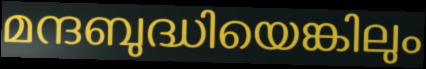
മന്ദബുദ്ധിയെങ്കിലും